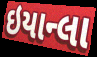
ઇયાન્લા